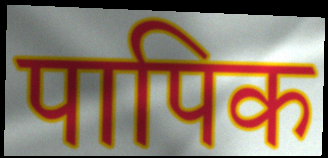
पापिक